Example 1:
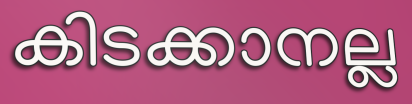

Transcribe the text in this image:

കിടക്കാനല്ല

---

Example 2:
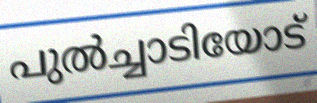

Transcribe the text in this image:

പുൽച്ചാടിയോട്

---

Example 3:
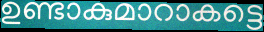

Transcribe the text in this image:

ഉണ്ടാകുമാറാകട്ടെ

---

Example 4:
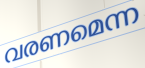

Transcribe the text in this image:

വരണമെന്ന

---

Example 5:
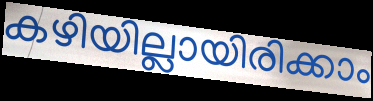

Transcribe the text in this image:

കഴിയില്ലായിരിക്കാം